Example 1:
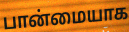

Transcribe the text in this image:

பான்மையாக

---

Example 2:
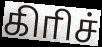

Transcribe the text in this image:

கிரிச்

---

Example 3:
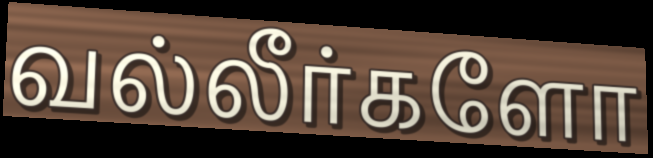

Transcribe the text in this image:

வல்லீர்களோ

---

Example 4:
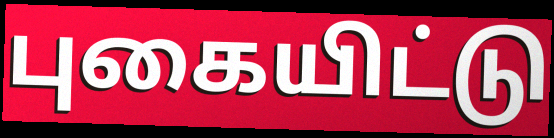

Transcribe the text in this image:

புகையிட்டு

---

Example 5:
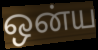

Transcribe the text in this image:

ஒன்ய